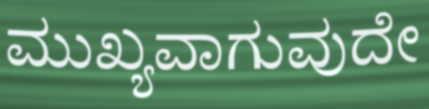
ಮುಖ್ಯವಾಗುವುದೇ